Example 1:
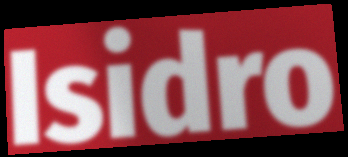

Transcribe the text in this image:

Isidro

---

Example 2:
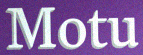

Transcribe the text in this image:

Motu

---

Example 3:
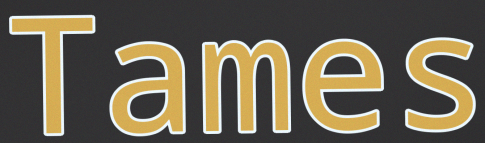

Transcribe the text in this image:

Tames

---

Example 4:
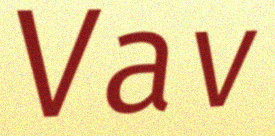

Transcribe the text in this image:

Vav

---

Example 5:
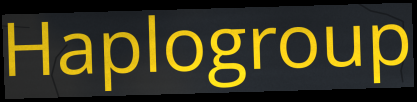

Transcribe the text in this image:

Haplogroup